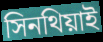
সিনথিয়াই